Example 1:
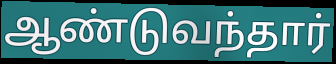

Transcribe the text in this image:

ஆண்டுவந்தார்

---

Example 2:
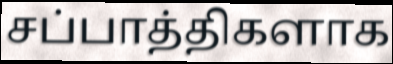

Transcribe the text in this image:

சப்பாத்திகளாக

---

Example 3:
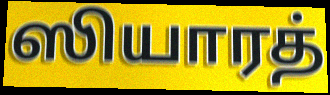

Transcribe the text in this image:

ஸியாரத்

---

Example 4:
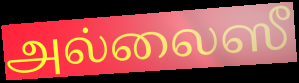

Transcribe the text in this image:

அல்லைஸீ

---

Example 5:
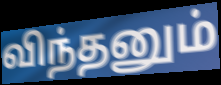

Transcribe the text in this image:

விந்தனும்